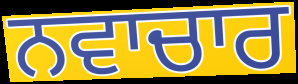
ਨਵਾਚਾਰ